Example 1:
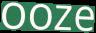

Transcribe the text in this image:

ooze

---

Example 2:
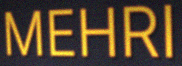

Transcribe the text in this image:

MEHRI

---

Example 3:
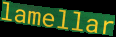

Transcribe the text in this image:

lamellar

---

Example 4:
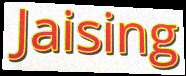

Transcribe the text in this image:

Jaising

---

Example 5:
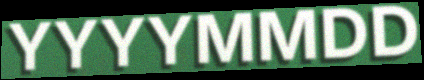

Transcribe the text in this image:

YYYYMMDD